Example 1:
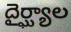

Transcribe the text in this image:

దైర్ఘ్యాల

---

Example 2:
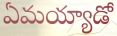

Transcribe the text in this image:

ఏమయ్యాడో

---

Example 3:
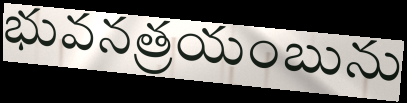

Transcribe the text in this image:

భువనత్రయంబును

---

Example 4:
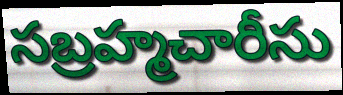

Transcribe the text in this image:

సబ్రహ్మచారీసు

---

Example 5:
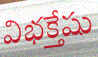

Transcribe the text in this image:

విభక్తేషు